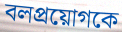
বলপ্রয়োগকে